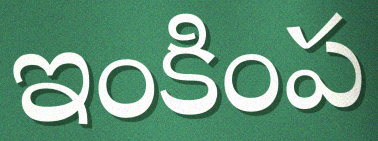
ఇంకింప